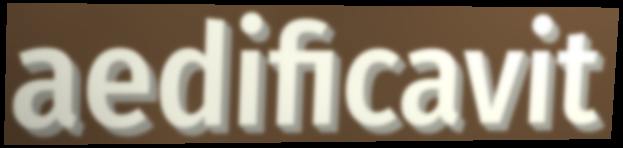
aedificavit